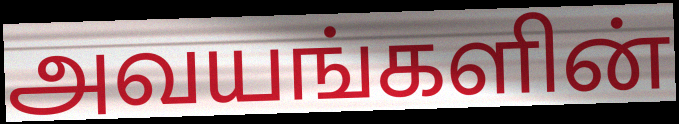
அவயங்களின்